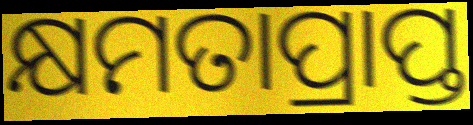
କ୍ଷମତାପ୍ରାପ୍ତ